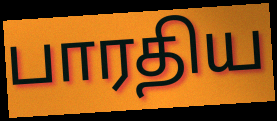
பாரதிய